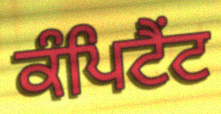
ਕੰਪਿਟੈਂਟ